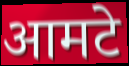
आमटे